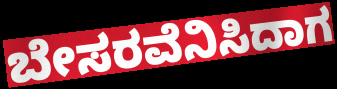
ಬೇಸರವೆನಿಸಿದಾಗ